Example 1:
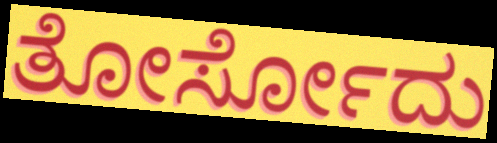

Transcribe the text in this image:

ತೋರ್ಸೋದು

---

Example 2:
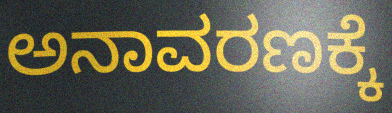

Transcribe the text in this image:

ಅನಾವರಣಕ್ಕೆ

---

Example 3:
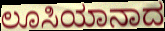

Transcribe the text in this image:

ಲೂಸಿಯಾನಾದ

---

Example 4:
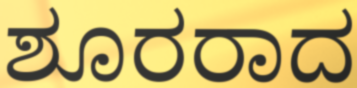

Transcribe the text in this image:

ಶೂರರಾದ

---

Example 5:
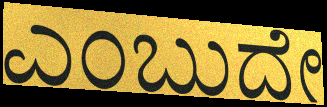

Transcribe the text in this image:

ಎಂಬುದೇ